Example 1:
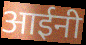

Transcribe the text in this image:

आईनी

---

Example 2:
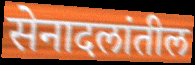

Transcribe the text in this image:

सेनादलांतील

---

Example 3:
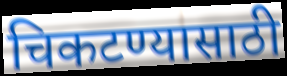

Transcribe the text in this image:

चिकटण्यासाठी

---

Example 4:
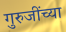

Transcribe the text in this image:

गुरुजींच्या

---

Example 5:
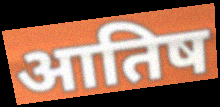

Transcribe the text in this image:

आतिष